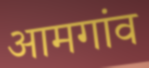
आमगांव